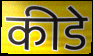
कीडे